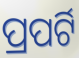
ପ୍ରପର୍ଟି